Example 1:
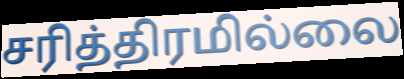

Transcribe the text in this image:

சரித்திரமில்லை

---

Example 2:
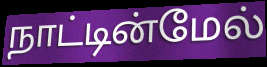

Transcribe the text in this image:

நாட்டின்மேல்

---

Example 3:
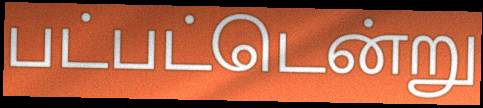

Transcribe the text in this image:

பட்பட்டென்று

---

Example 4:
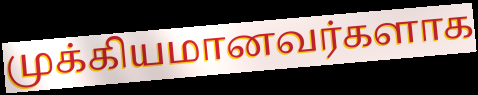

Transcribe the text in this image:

முக்கியமானவர்களாக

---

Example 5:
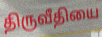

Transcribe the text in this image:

திருவீதியை